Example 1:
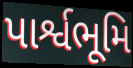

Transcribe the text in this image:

પાર્શ્વભૂમિ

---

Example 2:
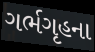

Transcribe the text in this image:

ગર્ભગૃહના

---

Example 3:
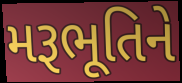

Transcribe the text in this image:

મરૂભૂતિને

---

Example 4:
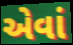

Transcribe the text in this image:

એવાં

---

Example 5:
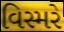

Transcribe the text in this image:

વિસ્મરે